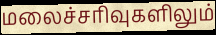
மலைச்சரிவுகளிலும்